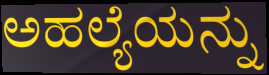
ಅಹಲ್ಯೆಯನ್ನು